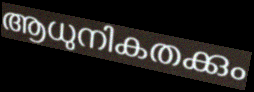
ആധുനികതക്കും